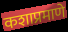
कशाप्रमाणे